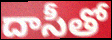
దాసీతో